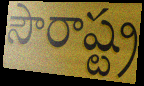
సౌరాష్ట్ర